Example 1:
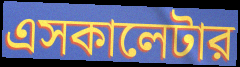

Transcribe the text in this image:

এসকালেটার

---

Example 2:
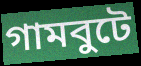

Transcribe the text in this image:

গামবুটে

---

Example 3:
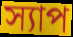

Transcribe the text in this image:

স্যাপ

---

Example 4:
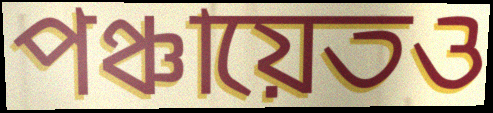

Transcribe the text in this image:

পঞ্চায়েতও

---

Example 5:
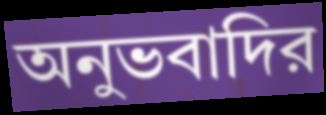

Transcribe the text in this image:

অনুভবাদির